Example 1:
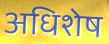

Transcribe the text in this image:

अधिशेष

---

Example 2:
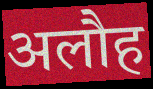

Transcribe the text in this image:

अलौह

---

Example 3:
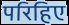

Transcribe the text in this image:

परिहिए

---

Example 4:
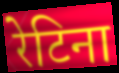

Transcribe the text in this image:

रेटिना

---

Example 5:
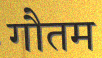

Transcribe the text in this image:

गौतम